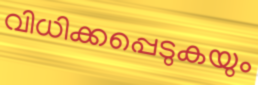
വിധിക്കപ്പെടുകയും